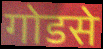
गोडसे